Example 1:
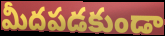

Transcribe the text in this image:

మీదపడకుండా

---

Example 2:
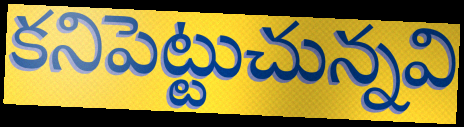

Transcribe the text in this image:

కనిపెట్టుచున్నవి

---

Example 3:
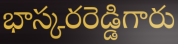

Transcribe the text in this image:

భాస్కరరెడ్డిగారు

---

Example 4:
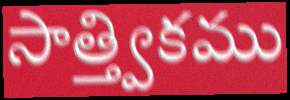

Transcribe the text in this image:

సాత్త్వికము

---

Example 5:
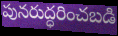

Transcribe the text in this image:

పునరుద్ధరించబడి